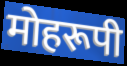
मोहरूपी